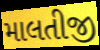
માલતીજી